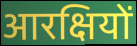
आरक्षियों